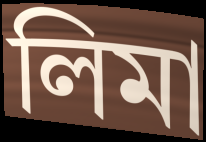
লিমা